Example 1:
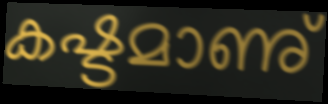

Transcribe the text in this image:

കഷ്ടമാണു്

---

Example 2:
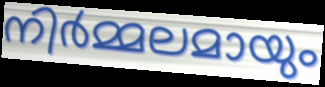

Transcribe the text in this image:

നിർമ്മലമായും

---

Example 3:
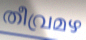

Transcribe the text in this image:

തീവ്രമഴ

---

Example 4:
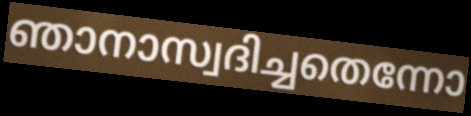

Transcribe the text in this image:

ഞാനാസ്വദിച്ചതെന്നോ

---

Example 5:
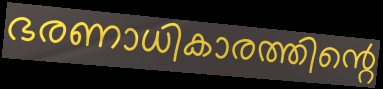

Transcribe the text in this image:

ഭരണാധികാരത്തിന്റെ